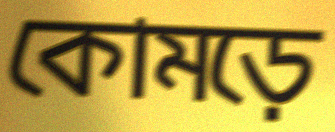
কোমড়ে